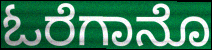
ಓರೆಗಾನೊ